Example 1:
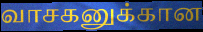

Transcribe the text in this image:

வாசகனுக்கான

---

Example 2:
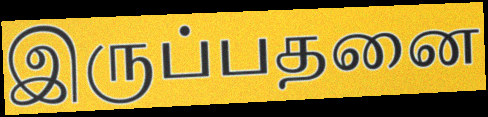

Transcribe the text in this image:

இருப்பதனை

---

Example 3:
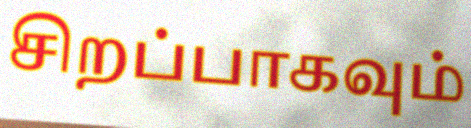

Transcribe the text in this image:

சிறப்பாகவும்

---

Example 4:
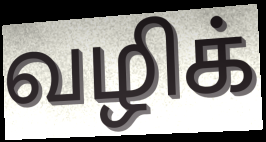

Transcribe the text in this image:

வழிக்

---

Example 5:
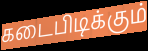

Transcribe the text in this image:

கடைபிடிக்கும்